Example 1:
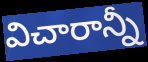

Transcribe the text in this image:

విచారాన్నీ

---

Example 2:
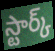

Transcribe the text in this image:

స్టార్క్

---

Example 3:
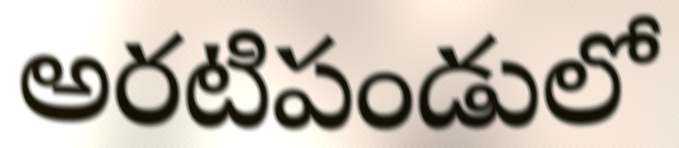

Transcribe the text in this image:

అరటిపండులో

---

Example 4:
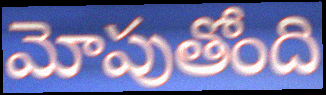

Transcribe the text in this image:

మోపుతోంది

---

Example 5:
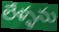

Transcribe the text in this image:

లేళ్ళను